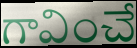
గావించే